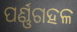
ପର୍ଣ୍ଣଗହଳ